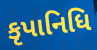
કૃપાનિધિ